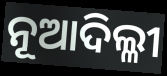
ନୂଆଦିଲ୍ଳୀ